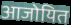
आजोयित